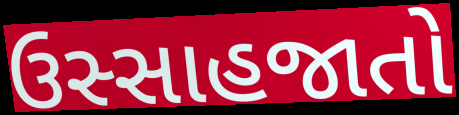
ઉસ્સાહજાતો